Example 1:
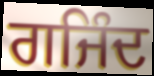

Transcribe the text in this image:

ਗਜਿੰਦ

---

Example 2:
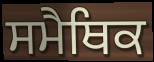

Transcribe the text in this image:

ਸਮੈਥਿਕ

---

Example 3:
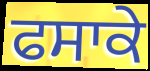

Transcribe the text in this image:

ਫਸਾਕੇ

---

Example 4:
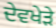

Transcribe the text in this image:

ਦੇਵਖੇੜੇ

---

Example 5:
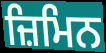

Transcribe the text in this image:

ਜ਼ਿਮਿਨ